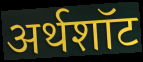
अर्थशॉट